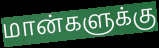
மான்களுக்கு